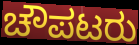
ಚೌಪಟರು